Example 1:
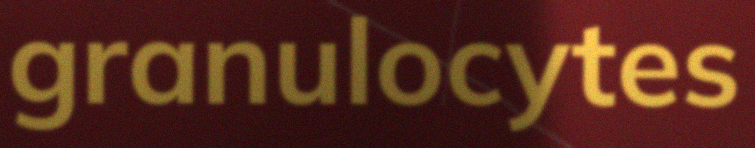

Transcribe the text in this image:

granulocytes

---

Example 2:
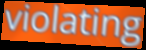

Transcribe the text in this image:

violating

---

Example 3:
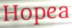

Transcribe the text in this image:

Hopea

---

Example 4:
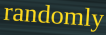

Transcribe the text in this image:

randomly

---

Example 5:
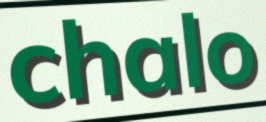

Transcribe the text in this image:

chalo